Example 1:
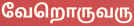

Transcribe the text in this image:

வேறொருவரு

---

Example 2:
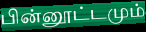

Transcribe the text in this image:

பின்னூட்டமும்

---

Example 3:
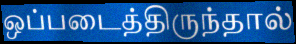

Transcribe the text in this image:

ஒப்படைத்திருந்தால்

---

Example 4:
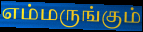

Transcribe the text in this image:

எம்மருங்கும்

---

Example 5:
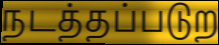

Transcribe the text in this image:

நடத்தப்படுற